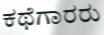
ಕಥೆಗಾರರು